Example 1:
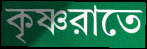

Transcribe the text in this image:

কৃষ্ণরাতে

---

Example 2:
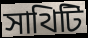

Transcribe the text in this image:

সাথিটি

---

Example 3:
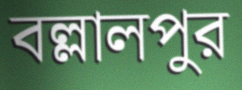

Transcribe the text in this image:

বল্লালপুর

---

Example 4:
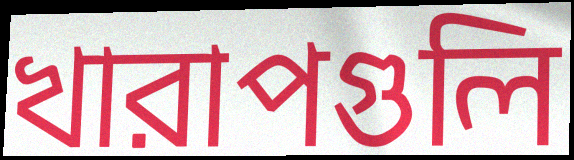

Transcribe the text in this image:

খারাপগুলি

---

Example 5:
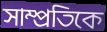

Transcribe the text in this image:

সাম্প্রতিকে